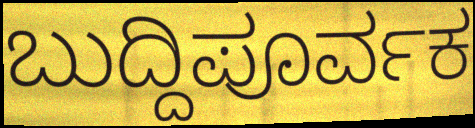
ಬುದ್ದಿಪೂರ್ವಕ